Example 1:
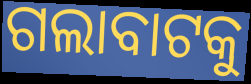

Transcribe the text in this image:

ଗଲାବାଟକୁ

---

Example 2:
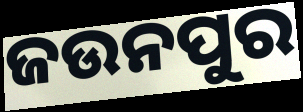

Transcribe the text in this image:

ଜଉନପୁର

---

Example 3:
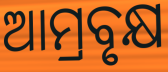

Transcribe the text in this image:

ଆମ୍ରବୃକ୍ଷ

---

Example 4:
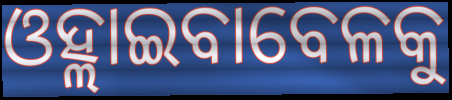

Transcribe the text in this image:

ଓହ୍ଲାଇବାବେଳକୁ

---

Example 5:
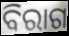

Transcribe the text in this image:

ବିରାଗ